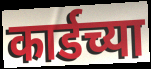
कार्डच्या